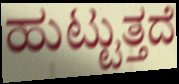
ಹುಟ್ಟುತ್ತದೆ